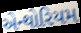
એન્થોરિયમ